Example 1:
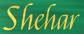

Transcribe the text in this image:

Shehar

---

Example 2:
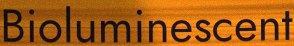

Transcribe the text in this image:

Bioluminescent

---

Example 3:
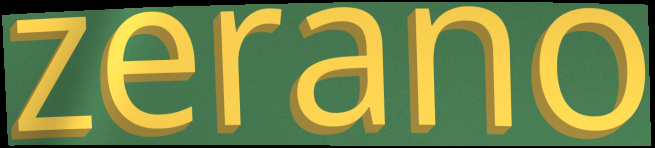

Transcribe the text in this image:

zerano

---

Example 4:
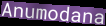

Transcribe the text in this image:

Anumodana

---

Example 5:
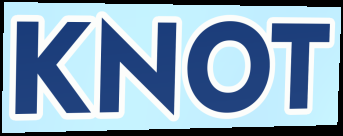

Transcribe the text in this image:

KNOT